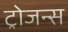
ट्रोजन्स